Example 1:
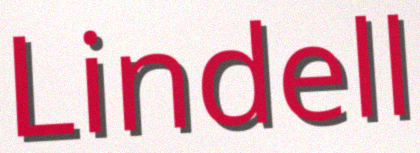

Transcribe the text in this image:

Lindell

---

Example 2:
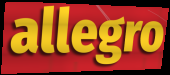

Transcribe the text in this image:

allegro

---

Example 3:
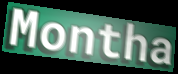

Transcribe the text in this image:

Montha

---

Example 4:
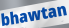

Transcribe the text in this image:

bhawtan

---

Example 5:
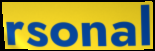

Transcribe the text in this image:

rsonal